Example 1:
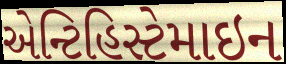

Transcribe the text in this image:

એન્ટિહિસ્ટેમાઇન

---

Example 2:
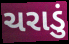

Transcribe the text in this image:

ચરાડું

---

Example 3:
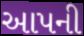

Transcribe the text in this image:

આપની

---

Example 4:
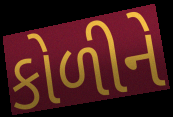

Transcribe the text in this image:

કોળીને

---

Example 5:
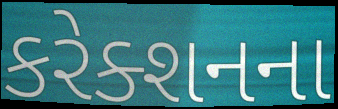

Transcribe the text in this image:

કરેક્શનના